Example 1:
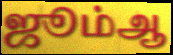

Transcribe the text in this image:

ஜூம்ஆ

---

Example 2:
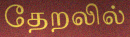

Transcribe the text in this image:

தேறலில்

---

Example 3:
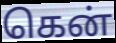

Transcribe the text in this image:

கென்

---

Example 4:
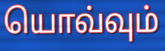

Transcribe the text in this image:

யொவ்வும்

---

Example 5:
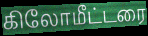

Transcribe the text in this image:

கிலோமீட்டரை